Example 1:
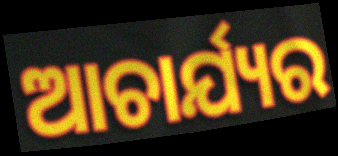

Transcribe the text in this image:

ଆଚାର୍ଯ୍ୟର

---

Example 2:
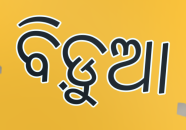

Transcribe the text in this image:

ବିଡ଼ୁଆ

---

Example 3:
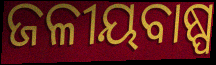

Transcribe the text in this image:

ଜଳୀୟବାଷ୍ପ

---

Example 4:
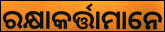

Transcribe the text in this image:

ରକ୍ଷାକର୍ତ୍ତାମାନେ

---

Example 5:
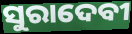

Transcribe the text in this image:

ସୁରାଦେବୀ